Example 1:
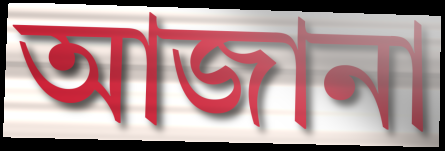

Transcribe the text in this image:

আজানা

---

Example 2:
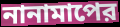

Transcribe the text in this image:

নানামাপের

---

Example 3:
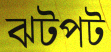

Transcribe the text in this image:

ঝটপট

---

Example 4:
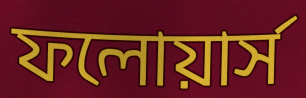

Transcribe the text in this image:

ফলোয়ার্স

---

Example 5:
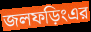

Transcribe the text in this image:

জলফড়িংএর